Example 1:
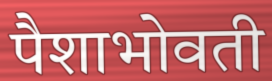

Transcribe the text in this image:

पैशाभोवती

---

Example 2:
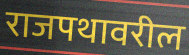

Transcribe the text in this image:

राजपथावरील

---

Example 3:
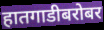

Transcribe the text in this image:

हातगाडीबरोबर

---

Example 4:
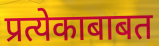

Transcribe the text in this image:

प्रत्येकाबाबत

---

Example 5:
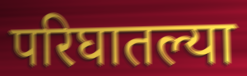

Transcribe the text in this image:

परिघातल्या